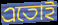
এতোই